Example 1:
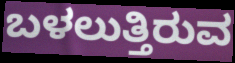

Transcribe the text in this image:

ಬಳಲುತ್ತಿರುವ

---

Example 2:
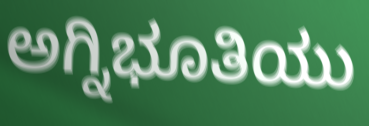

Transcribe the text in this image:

ಅಗ್ನಿಭೂತಿಯು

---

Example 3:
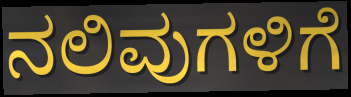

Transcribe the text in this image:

ನಲಿವುಗಳಿಗೆ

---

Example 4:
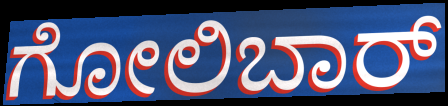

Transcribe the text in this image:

ಗೋಲಿಬಾರ್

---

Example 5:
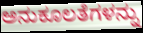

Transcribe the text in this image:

ಅನುಕೂಲತೆಗಳನ್ನು